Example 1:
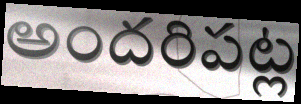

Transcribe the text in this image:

అందరిపట్ల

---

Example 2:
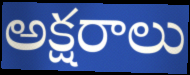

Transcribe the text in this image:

అక్షరాలు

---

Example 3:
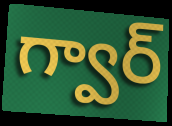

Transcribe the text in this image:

గ్వార్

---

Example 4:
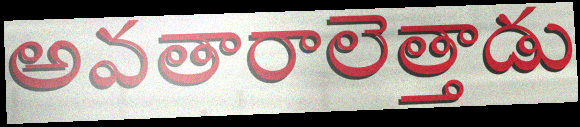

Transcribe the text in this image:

అవతారాలెత్తాడు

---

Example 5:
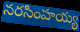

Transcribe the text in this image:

నరసింహయ్య